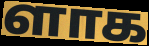
ளாக